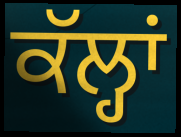
ਕੱਲ੍ਹਾਂ